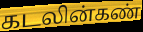
கடலின்கண்